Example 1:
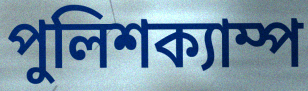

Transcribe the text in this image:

পুলিশক্যাম্প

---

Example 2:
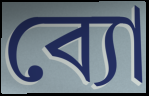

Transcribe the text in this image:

ব্যো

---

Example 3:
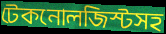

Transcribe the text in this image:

টেকনোলজিস্টসহ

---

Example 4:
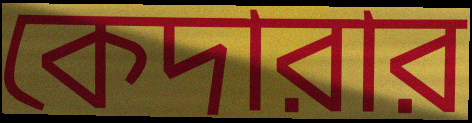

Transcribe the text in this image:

কেদারার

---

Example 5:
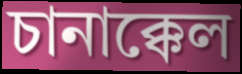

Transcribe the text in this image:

চানাক্কেল